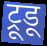
ट्रूडू